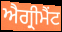
ਐਗ੍ਰੀਮੈਂਟ